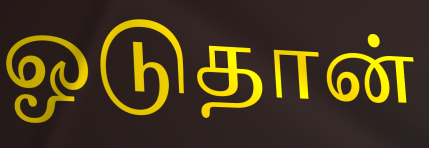
ஓடுதான்